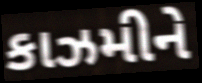
કાઝમીને